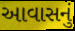
આવાસનું